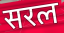
सरल